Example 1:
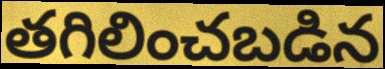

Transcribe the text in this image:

తగిలించబడిన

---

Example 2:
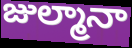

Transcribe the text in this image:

జుల్మానా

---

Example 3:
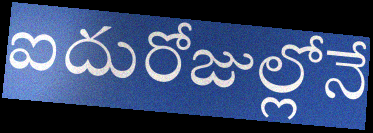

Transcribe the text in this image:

ఐదురోజుల్లోనే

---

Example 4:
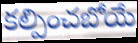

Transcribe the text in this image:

కల్పించబోయే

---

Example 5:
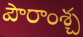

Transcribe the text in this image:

పౌరాంశ్చ